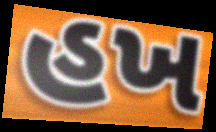
હખ